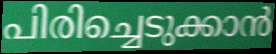
പിരിച്ചെടുക്കാൻ